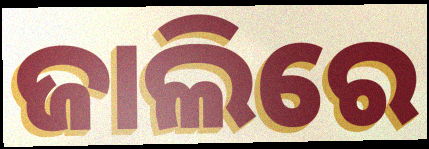
ଜାଲିରେ